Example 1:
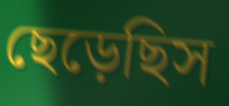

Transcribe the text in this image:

ছেড়েছিস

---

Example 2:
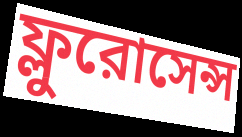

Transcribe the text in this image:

ফ্লুরোসেন্স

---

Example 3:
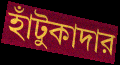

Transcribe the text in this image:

হাঁটুকাদার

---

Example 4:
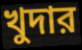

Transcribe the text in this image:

খুদার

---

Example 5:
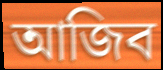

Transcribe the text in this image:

আজিব